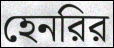
হেনরির